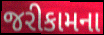
જરીકામના